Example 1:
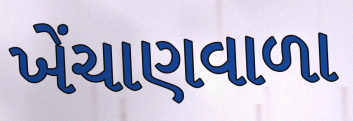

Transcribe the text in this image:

ખેંચાણવાળા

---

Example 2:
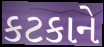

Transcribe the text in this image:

કટકાને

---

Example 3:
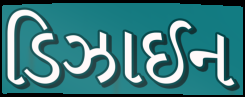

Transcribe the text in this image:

ડિઝાઈન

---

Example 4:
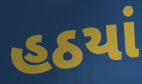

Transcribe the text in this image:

હઠયાં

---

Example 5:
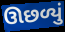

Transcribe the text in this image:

ઊછળ્યું